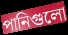
পানিগুলো